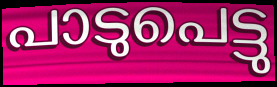
പാടുപെട്ടു